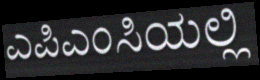
ಎಪಿಎಂಸಿಯಲ್ಲಿ